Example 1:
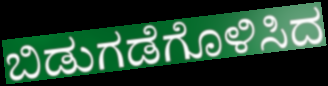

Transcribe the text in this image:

ಬಿಡುಗಡೆಗೊಳಿಸಿದ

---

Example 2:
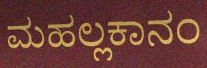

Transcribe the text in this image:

ಮಹಲ್ಲಕಾನಂ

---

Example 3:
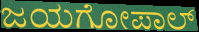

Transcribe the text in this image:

ಜಯಗೋಪಾಲ್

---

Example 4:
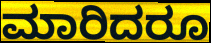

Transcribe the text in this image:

ಮಾರಿದರೂ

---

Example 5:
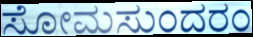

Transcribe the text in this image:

ಸೋಮಸುಂದರಂ